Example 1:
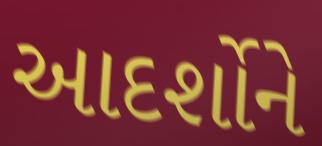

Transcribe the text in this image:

આદર્શોને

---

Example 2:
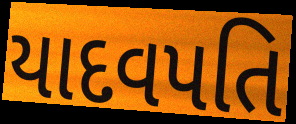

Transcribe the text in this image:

યાદવપતિ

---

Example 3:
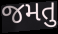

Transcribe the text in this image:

જમતુ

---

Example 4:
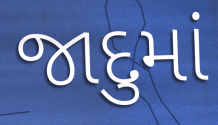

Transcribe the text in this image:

જાદુમાં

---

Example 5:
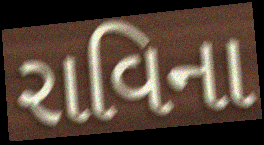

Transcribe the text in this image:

રાવિના